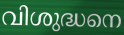
വിശുദ്ധനെ